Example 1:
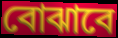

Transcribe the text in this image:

বোঝাবে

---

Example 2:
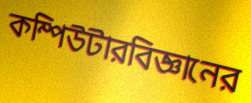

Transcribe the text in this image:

কম্পিউটারবিজ্ঞানের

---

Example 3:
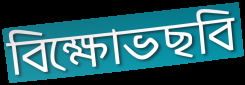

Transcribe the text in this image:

বিক্ষোভছবি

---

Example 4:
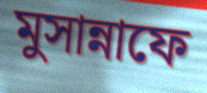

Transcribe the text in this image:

মুসান্নাফে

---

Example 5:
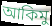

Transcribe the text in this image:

আকিমু